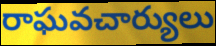
రాఘవచార్యులు